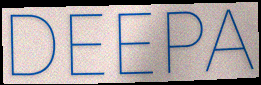
DEEPA